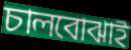
চালবোঝাই